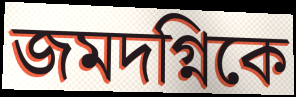
জমদগ্নিকে